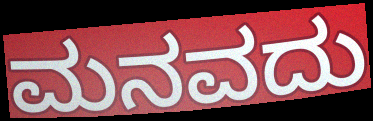
ಮನವದು